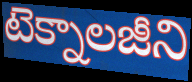
టెక్నాలజీని